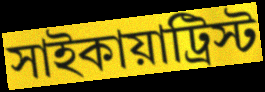
সাইকায়াট্রিস্ট